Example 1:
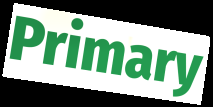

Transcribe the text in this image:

Primary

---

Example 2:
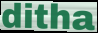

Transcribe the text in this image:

ditha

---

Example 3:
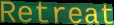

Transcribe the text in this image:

Retreat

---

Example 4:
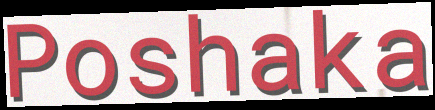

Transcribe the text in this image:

Poshaka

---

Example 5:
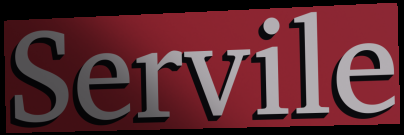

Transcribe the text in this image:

Servile